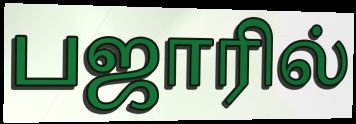
பஜாரில்